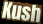
Kush